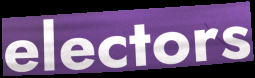
electors